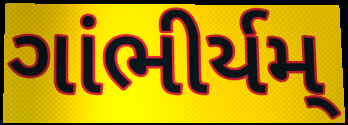
ગાંભીર્યમ્